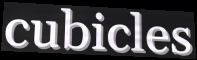
cubicles